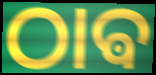
ଠାଵ